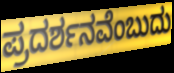
ಪ್ರದರ್ಶನವೆಂಬುದು